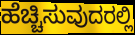
ಹೆಚ್ಚಿಸುವುದರಲ್ಲಿ